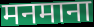
मनमाना